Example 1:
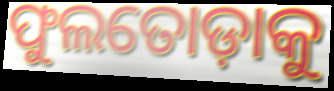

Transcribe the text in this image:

ଫୁଲତୋଡ଼ାକୁ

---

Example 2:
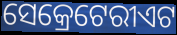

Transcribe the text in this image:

ସେକ୍ରେଟେରୀଏଟ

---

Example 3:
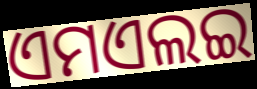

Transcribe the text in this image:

ଏମଏଲଇ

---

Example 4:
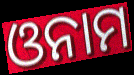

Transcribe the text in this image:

ଓନାମ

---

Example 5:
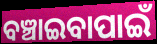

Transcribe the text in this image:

ବଞ୍ଚାଇବାପାଇଁ